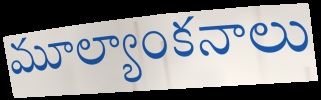
మూల్యాంకనాలు